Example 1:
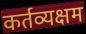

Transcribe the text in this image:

कर्तव्यक्षम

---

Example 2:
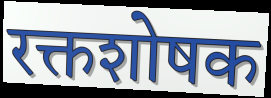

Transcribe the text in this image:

रक्तशोषक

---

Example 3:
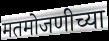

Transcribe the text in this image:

मतमोजणीच्या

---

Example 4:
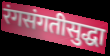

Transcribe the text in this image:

रंगसंगतीसुद्धा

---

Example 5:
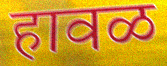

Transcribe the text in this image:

हावळ